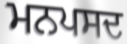
ਮਨਪਸਦ